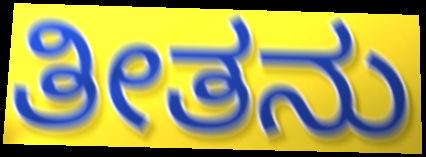
ತೀತನು